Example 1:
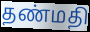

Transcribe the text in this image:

தண்மதி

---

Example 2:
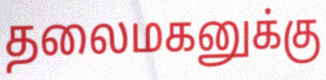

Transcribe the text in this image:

தலைமகனுக்கு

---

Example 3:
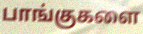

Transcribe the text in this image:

பாங்குகளை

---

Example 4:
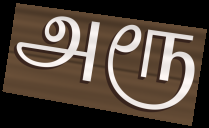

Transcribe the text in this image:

அரூ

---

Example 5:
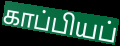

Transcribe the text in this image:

காப்பியப்